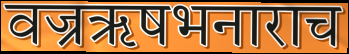
वज्रऋषभनाराच